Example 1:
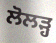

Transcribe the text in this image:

ਲੋਲੜ੍ਹ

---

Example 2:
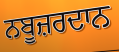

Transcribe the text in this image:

ਨਬੂਜ਼ਰਦਾਨ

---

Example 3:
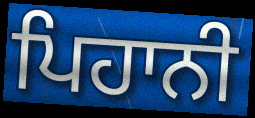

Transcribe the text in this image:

ਪਿਹਾਨੀ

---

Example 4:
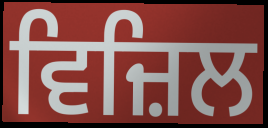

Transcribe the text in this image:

ਵਿਜ਼ਿਲ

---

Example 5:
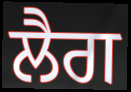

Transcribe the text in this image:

ਲੈਗ